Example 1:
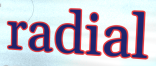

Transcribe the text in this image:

radial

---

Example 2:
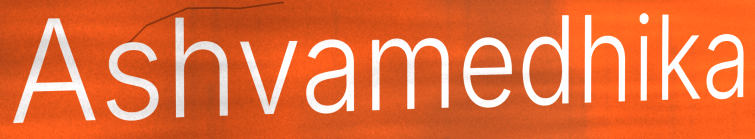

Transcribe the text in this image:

Ashvamedhika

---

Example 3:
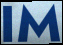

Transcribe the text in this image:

IM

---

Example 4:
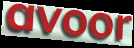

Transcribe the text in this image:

avoor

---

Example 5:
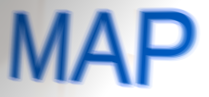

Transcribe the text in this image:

MAP